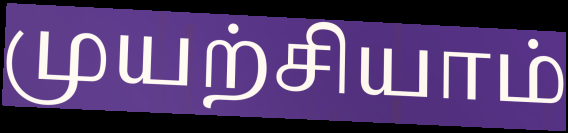
முயற்சியாம்